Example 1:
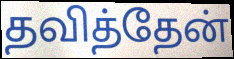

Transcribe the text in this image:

தவித்தேன்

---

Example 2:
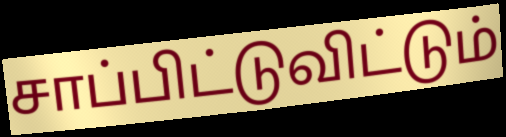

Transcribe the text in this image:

சாப்பிட்டுவிட்டும்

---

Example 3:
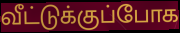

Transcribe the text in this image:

வீட்டுக்குப்போக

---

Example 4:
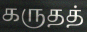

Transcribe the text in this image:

கருதத்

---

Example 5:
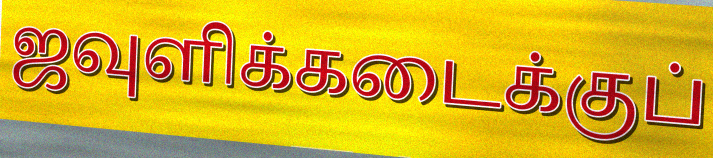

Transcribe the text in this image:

ஜவுளிக்கடைக்குப்